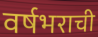
वर्षभराची